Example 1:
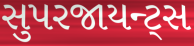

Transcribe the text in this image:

સુપરજાયન્ટ્સ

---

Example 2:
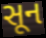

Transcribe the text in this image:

સૂન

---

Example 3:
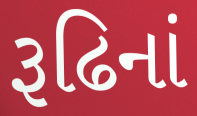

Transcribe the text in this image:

રૂઢિનાં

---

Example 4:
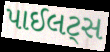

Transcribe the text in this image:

પાઈલટ્સ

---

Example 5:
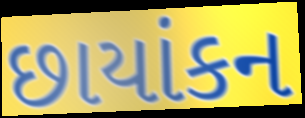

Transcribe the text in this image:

છાયાંકન